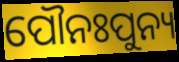
ପୌନଃପୁନ୍ୟ